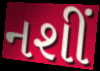
નશીં